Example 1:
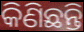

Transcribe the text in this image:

କିଣିଛନ୍ତି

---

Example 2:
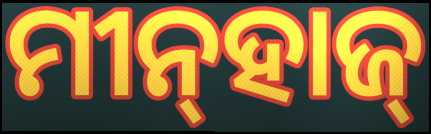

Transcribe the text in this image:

ମୀନ୍‌ହାଜ୍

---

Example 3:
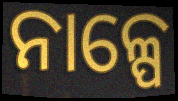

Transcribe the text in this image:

ନାଳ୍ପେ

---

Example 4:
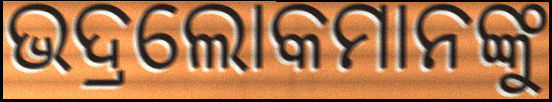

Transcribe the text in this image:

ଭଦ୍ରଲୋକମାନଙ୍କୁ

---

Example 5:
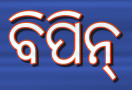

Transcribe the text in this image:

ବିପିନ୍